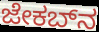
ಜೇಕಬ್‌ನ